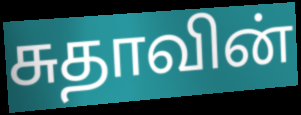
சுதாவின்